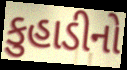
કુહાડીનો